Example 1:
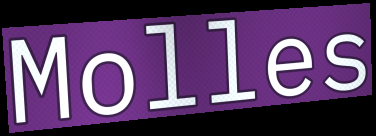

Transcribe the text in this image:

Molles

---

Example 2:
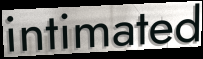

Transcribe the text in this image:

intimated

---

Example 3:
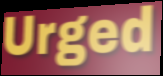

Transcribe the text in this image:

Urged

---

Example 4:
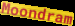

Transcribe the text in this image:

Moondram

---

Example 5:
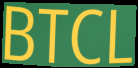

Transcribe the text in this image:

BTCL